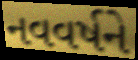
નવવર્ષને